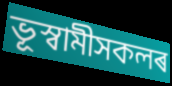
ভূস্বামীসকলৰ